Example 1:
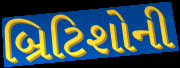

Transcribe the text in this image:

બ્રિટિશોની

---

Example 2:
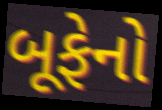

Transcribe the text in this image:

બૂફેનો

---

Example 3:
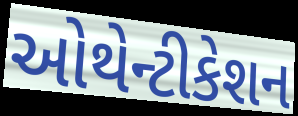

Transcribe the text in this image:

ઓથેન્ટીકેશન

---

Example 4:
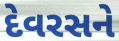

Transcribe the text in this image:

દેવરસને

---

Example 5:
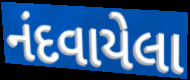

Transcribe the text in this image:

નંદવાયેલા